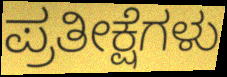
ಪ್ರತೀಕ್ಷೆಗಳು